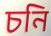
চনি